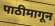
पाठीमागून